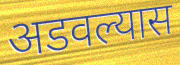
अडवल्यास